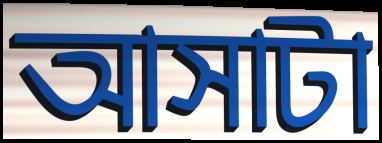
আসাটা